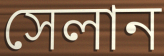
সেলান